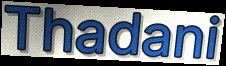
Thadani